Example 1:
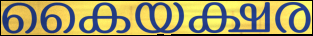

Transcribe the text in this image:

കൈയക്ഷര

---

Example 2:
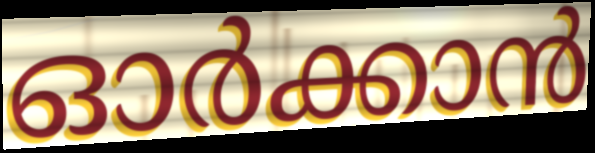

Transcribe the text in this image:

ഓർക്കാൻ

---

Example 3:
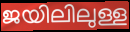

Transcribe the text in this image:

ജയിലിലുള്ള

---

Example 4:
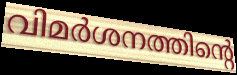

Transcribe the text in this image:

വിമർശനത്തിന്റെ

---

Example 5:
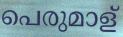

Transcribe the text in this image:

പെരുമാള്